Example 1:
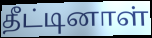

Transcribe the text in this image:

தீட்டினாள்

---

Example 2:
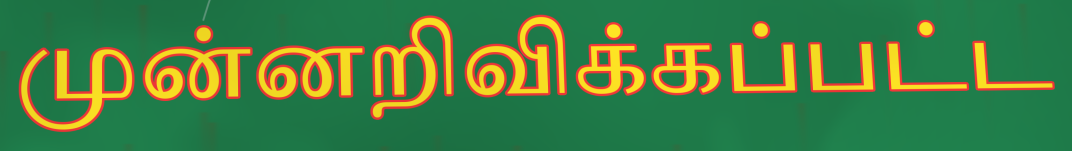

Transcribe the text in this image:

முன்னறிவிக்கப்பட்ட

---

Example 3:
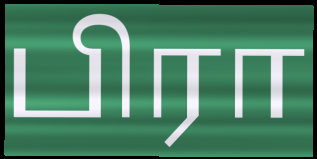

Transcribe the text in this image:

பிரா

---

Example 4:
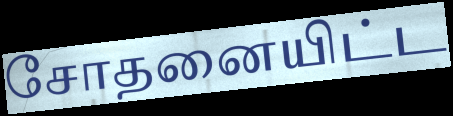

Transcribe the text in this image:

சோதனையிட்ட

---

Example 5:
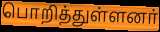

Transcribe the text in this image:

பொறித்துள்ளனர்